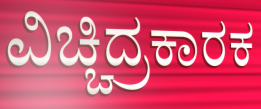
ವಿಚ್ಚಿದ್ರಕಾರಕ